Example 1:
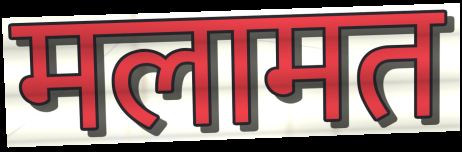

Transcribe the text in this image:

मलामत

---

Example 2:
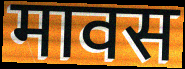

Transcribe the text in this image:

मावस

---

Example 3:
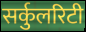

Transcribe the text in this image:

सर्कुलरिटी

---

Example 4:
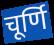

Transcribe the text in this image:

चूर्णि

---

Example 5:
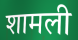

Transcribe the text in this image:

शामली